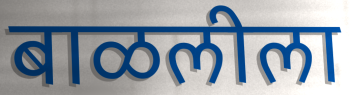
बाळलीला